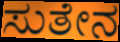
ಸುತೇನ